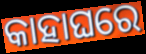
କାହାଘରେ